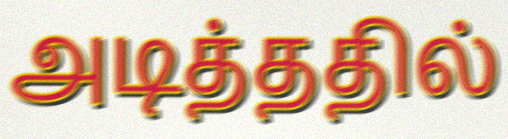
அடித்ததில்